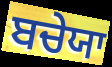
ਬਚੇਯਾ